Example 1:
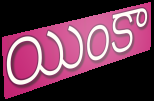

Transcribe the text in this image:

యింకా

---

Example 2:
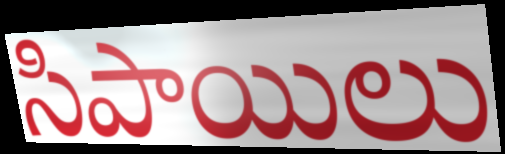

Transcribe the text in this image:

సిపాయిలు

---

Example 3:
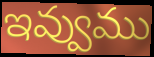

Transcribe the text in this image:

ఇవ్వుము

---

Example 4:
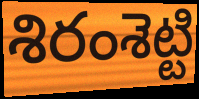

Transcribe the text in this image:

శిరంశెట్టి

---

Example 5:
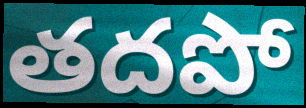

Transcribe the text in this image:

తదపో